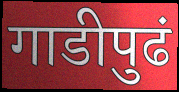
गाडीपुढं